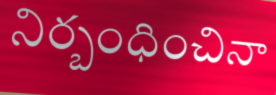
నిర్బంధించినా